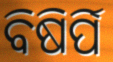
ବିଷିର୍ପି